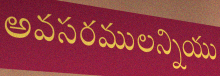
అవసరములన్నియు